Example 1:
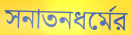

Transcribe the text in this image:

সনাতনধর্মের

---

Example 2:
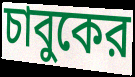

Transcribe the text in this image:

চাবুকের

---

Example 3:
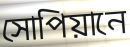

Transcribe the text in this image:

সোপিয়ানে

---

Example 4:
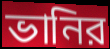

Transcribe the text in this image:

ভানির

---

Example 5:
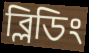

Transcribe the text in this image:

ব্লিডিং